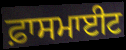
ਫ਼ਾਸਮਾਈਟ